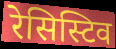
रेसिस्टिव